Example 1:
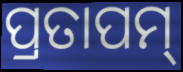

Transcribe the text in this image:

ପ୍ରତାପମ୍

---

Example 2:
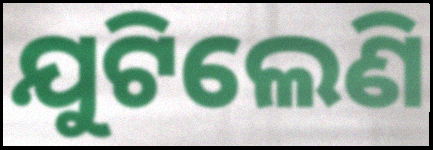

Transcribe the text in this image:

ଯୁଟିଲେଣି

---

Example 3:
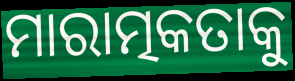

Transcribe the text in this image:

ମାରାତ୍ମକତାକୁ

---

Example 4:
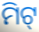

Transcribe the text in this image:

ମିଟ୍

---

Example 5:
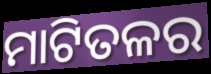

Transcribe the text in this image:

ମାଟିତଳର